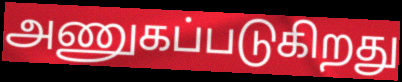
அணுகப்படுகிறது